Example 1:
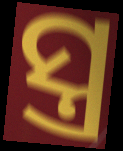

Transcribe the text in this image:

ସ୍ତ୍ର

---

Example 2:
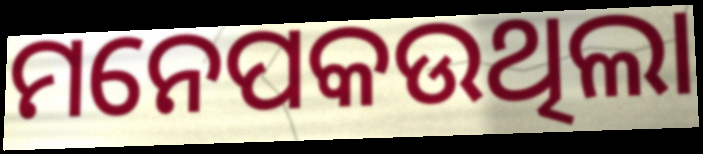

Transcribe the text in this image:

ମନେପକଉଥିଲା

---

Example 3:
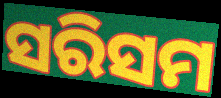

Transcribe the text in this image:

ସରିସମ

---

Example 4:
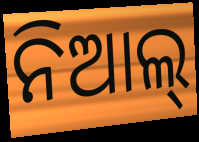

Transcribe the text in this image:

ନିଆଲ୍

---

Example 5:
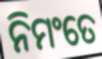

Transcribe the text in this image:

ନିମଂତେ